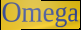
Omega